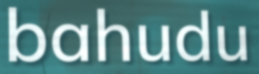
bahudu